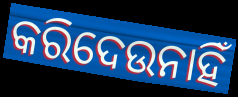
କରିଦେଉନାହିଁ